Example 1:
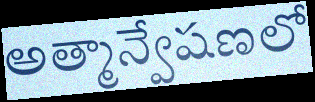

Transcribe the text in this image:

అత్మాన్వేషణలో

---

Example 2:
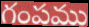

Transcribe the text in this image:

గంపము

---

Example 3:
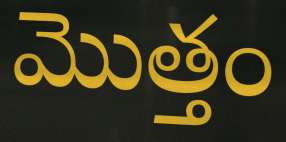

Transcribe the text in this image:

మొత్తం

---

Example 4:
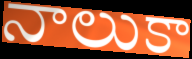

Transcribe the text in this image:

నాలుకా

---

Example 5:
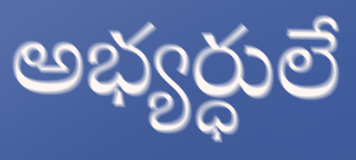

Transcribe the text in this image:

అభ్యర్ధులే